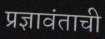
प्रज्ञावंताची